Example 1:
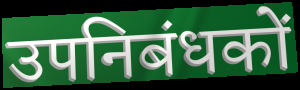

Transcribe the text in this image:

उपनिबंधकों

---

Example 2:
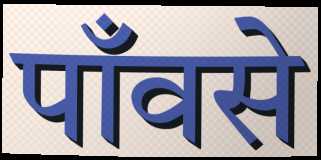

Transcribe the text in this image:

पाँवसे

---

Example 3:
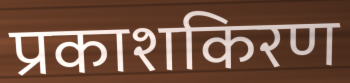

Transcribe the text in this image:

प्रकाशकिरण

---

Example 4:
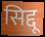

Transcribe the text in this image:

सिद्दू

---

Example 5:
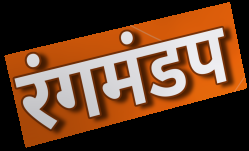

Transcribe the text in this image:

रंगमंडप